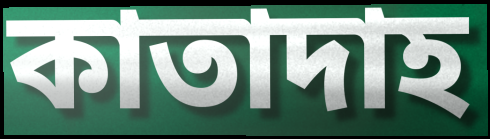
কাতাদাহ